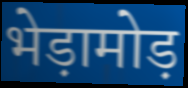
भेड़ामोड़